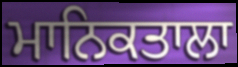
ਮਾਨਿਕਤਾਲਾ